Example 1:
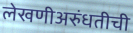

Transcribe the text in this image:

लेखणीअरुंधतीची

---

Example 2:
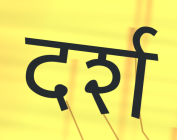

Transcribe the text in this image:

दर्श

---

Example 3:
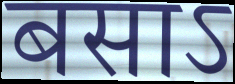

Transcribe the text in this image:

बसाऽ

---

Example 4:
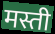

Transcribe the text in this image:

मस्ती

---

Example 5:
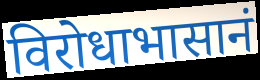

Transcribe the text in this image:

विरोधाभासानं